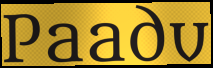
Paadu